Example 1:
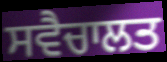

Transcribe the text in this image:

ਸਵੈਚਾਲਤ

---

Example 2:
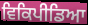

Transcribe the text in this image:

ਵਿਕਿਪੀਡਿਆ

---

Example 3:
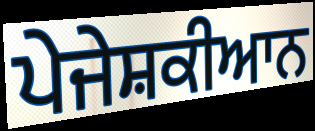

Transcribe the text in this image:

ਪੇਜੇਸ਼ਕੀਆਨ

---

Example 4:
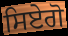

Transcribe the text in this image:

ਸਿਏਗੋ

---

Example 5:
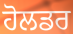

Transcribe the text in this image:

ਹੋਲਡਰ